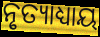
ନୃତ୍ୟାଧ୍ୟାୟ